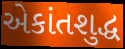
એકાંતશુદ્ધ